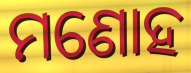
ମଣୋହ